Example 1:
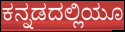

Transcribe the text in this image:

ಕನ್ನಡದಲ್ಲಿಯೂ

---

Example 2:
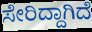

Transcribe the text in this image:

ಸೇರಿದ್ದಾಗಿದೆ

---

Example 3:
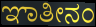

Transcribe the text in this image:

ಞಾತೀನಂ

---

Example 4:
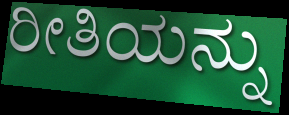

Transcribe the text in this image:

ರೀತಿಯನ್ನು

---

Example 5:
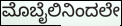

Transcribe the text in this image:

ಮೊಬೈಲಿನಿಂದಲೇ